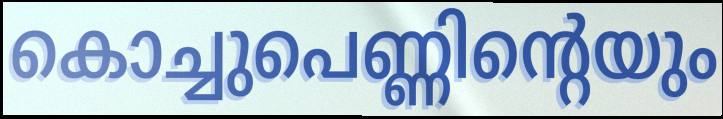
കൊച്ചുപെണ്ണിന്റെയും